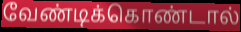
வேண்டிக்கொண்டால்